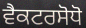
ਵੈਕਟਰਸੋਧੋ